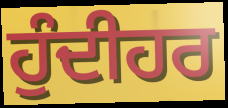
ਹੁੰਦੀਹਰ